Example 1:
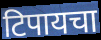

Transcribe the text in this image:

टिपायचा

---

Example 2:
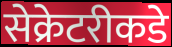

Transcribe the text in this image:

सेक्रेटरीकडे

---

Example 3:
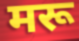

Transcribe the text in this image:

मरू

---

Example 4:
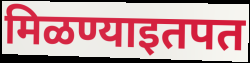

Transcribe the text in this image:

मिळण्याइतपत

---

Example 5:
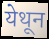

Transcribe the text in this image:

येथून